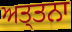
ਅਤ੍ਤਨਾ